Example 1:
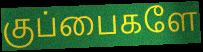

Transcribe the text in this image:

குப்பைகளே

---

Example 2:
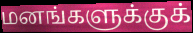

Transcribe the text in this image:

மனங்களுக்குக்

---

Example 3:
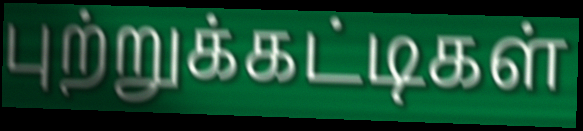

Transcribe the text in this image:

புற்றுக்கட்டிகள்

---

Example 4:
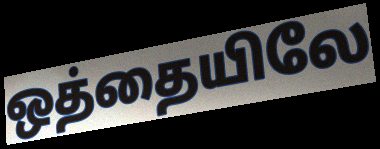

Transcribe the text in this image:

ஒத்தையிலே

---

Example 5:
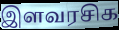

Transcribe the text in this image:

இளவரசிக